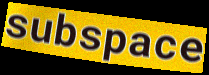
subspace